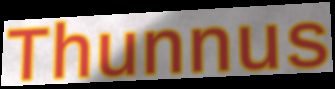
Thunnus